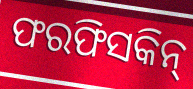
ଫରଫିସକିନ୍